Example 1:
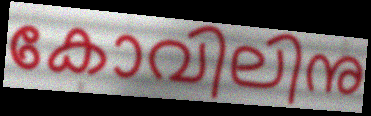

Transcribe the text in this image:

കോവിലിനു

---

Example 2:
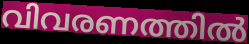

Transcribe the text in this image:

വിവരണത്തിൽ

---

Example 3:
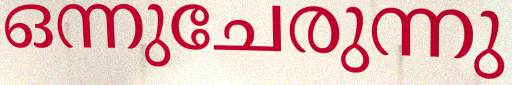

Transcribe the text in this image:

ഒന്നുചേരുന്നു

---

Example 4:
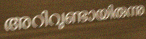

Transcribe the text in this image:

അറിവുണ്ടായിരുന്നു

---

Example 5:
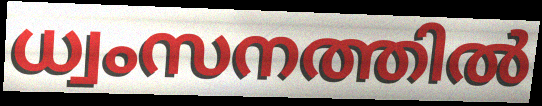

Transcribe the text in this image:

ധ്വംസനത്തിൽ